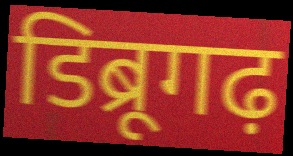
डिब्रूगढ़